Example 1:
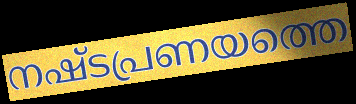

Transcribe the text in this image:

നഷ്ടപ്രണയത്തെ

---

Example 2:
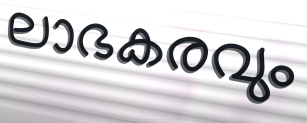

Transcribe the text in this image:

ലാഭകരവും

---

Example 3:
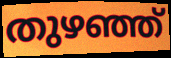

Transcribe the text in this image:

തുഴഞ്ഞ്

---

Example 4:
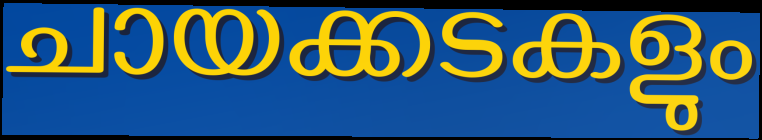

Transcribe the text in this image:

ചായക്കടകളും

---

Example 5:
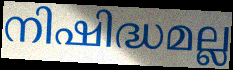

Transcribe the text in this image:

നിഷിദ്ധമല്ല